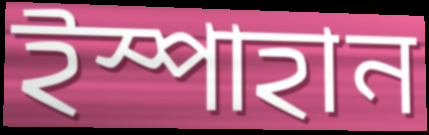
ইস্পাহান